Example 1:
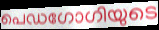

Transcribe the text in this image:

പെഡഗോഗിയുടെ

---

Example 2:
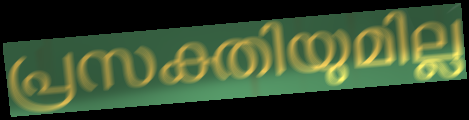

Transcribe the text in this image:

പ്രസക്തിയുമില്ല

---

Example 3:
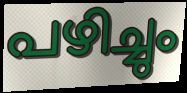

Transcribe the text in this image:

പഴിച്ചും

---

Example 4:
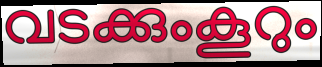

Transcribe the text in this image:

വടക്കുംകൂറും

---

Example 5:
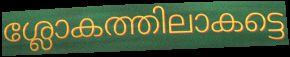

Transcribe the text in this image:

ശ്ലോകത്തിലാകട്ടെ